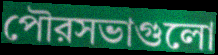
পৌরসভাগুলো